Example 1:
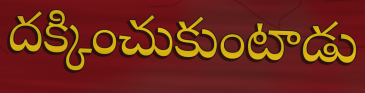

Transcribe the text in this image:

దక్కించుకుంటాడు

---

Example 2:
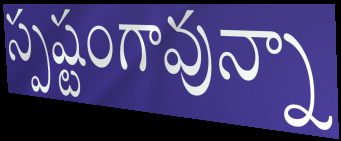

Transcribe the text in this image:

స్పష్టంగావున్నా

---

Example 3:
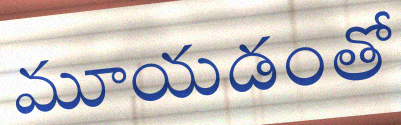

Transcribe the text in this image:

మూయడంతో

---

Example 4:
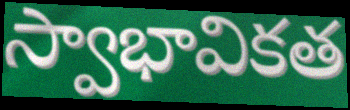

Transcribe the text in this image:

స్వాభావికత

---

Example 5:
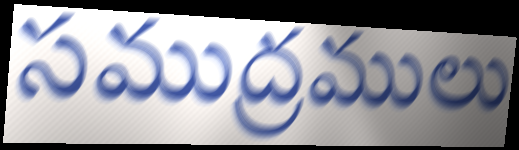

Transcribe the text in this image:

సముద్రములు